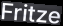
Fritze